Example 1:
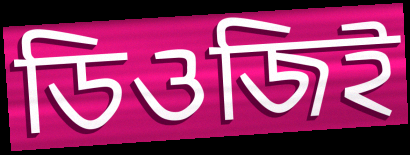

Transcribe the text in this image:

ডিওজিই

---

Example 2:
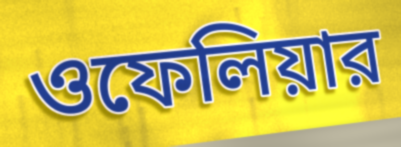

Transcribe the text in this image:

ওফেলিয়ার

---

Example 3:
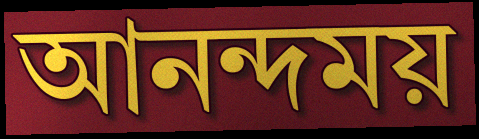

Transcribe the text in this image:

আনন্দময়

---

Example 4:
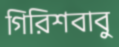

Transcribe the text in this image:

গিরিশবাবু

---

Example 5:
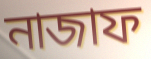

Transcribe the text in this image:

নাজাফ